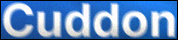
Cuddon